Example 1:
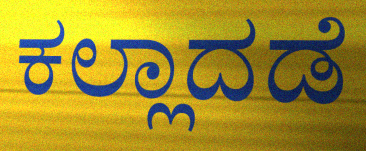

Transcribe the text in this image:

ಕಲ್ಲಾದಡೆ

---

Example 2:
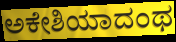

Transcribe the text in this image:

ಅಕೇಶಿಯಾದಂಥ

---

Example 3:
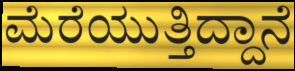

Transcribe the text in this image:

ಮೆರೆಯುತ್ತಿದ್ದಾನೆ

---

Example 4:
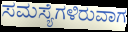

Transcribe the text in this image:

ಸಮಸ್ಯೆಗಳಿರುವಾಗ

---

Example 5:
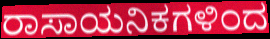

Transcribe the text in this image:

ರಾಸಾಯನಿಕಗಳಿಂದ